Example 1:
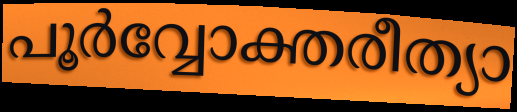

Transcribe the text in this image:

പൂർവ്വോക്തരീത്യാ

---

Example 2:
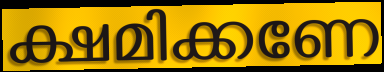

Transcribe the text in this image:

ക്ഷമിക്കണേ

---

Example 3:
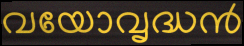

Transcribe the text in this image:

വയോവൃദ്ധൻ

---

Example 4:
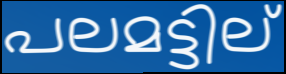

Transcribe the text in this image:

പലമട്ടില്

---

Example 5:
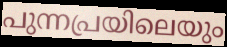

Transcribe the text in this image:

പുന്നപ്രയിലെയും